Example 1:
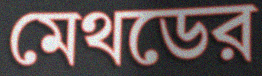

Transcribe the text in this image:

মেথডের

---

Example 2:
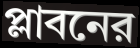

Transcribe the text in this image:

প্লাবনের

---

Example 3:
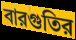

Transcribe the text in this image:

বারগুতির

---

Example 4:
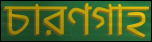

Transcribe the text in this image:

চারণগাহ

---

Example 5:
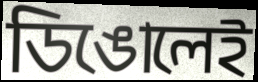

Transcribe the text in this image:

ডিঙোলেই